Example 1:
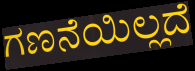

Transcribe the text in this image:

ಗಣನೆಯಿಲ್ಲದೆ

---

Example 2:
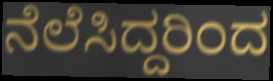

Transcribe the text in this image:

ನೆಲೆಸಿದ್ದರಿಂದ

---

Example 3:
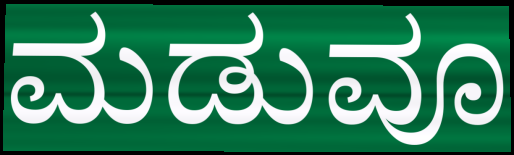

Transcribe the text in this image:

ಮಡುವೂ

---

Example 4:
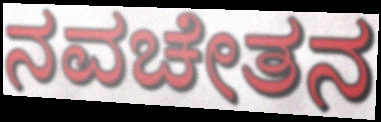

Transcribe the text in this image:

ನವಚೇತನ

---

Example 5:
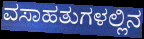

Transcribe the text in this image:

ವಸಾಹತುಗಳಲ್ಲಿನ